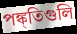
পঙ্ক্তিগুলি